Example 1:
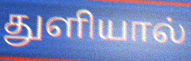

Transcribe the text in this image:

துளியால்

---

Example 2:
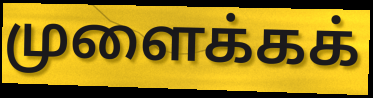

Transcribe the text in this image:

முளைக்கக்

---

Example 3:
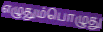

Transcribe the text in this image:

எழுதும்பொழுது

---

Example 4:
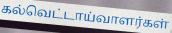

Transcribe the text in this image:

கல்வெட்டாய்வாளர்கள்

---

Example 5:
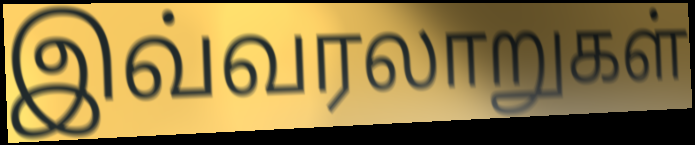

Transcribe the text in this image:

இவ்வரலாறுகள்